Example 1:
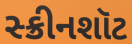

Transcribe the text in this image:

સ્ક્રીનશૉટ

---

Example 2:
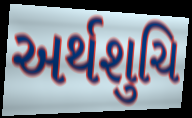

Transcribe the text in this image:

અર્થશુચિ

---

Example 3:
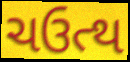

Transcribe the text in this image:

ચઉત્થ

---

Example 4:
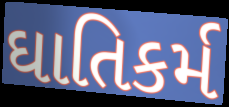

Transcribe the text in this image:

ઘાતિકર્મ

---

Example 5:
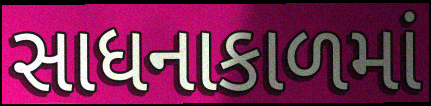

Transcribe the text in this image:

સાધનાકાળમાં